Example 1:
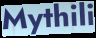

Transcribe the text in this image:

Mythili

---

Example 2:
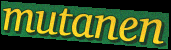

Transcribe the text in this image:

mutanen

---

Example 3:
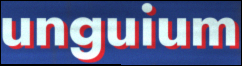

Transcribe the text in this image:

unguium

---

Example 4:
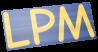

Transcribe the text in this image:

LPM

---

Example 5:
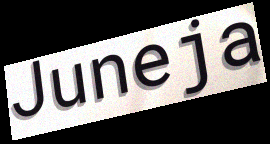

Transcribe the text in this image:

Juneja